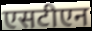
एसटीएन